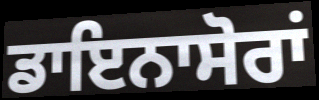
ਡਾਇਨਾਸੋਰਾਂ